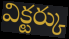
విక్టర్కు